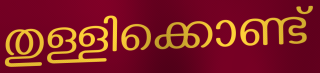
തുള്ളിക്കൊണ്ട്